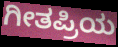
ಗೀತಪ್ರಿಯ